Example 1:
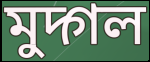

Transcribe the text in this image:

মুদ্গল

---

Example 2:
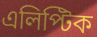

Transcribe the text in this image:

এলিপ্টিক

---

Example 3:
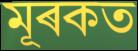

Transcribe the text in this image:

মূৰকত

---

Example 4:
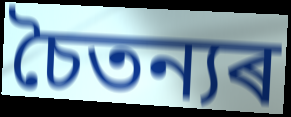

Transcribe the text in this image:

চৈতন্যৰ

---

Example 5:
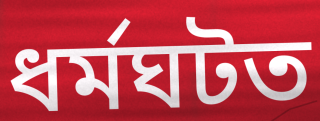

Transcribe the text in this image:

ধৰ্মঘটত